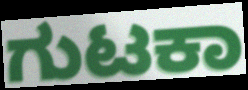
ಗುಟಕಾ